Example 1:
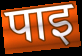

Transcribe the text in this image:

पाइ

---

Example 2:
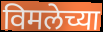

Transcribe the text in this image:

विमलेच्या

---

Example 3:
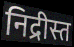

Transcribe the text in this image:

निद्रीस्त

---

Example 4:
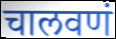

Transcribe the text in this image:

चालवणं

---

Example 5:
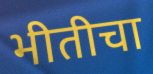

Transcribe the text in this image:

भीतीचा